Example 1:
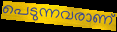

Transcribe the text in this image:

പെടുന്നവരാണ്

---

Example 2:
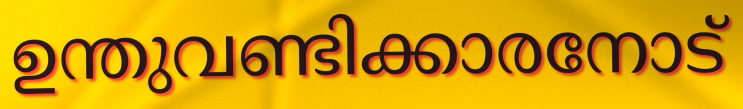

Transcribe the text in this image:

ഉന്തുവണ്ടിക്കാരനോട്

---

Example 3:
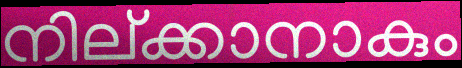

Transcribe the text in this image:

നില്ക്കാനാകും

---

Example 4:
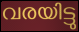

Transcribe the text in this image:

വരയിട്ടു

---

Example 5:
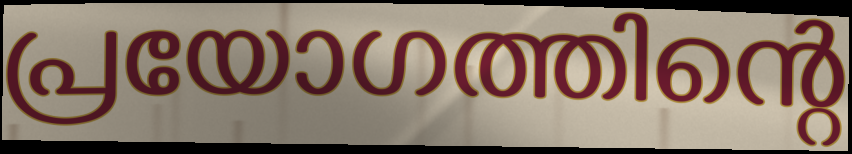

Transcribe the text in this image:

പ്രയോഗത്തിന്റെ